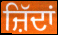
ਜ਼ਿੱਦਾਂ